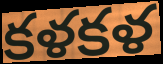
కళకళ